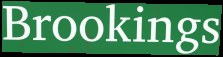
Brookings